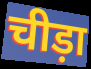
चीड़ा